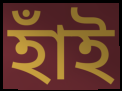
হাঁই